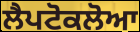
ਲੈਪਟੋਕਲੋਆ